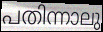
പതിന്നാലു